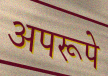
अपरूपे